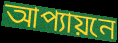
আপ্যায়নে